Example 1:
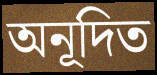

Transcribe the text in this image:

অনূদিত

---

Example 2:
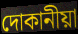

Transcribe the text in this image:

দোকানীয়া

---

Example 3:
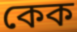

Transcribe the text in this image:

কেক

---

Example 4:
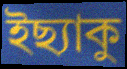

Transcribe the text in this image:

ইছ্যাকু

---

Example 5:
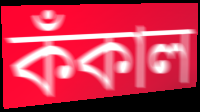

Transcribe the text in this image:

কঁকাল